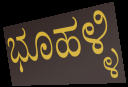
ಭೂಹಳ್ಳಿ